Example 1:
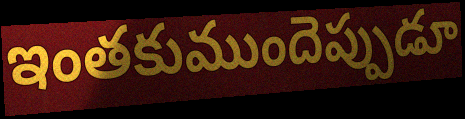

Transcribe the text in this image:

ఇంతకుముందెప్పుడూ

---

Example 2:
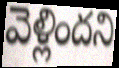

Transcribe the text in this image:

వెళ్లిందని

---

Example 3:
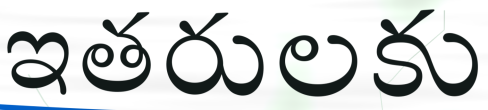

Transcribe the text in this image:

ఇతరులకు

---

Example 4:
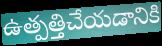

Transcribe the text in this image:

ఉత్పత్తిచేయడానికి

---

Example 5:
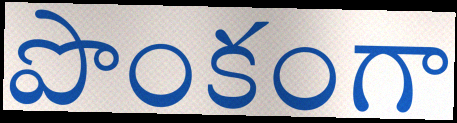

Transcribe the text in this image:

పొంకంగా